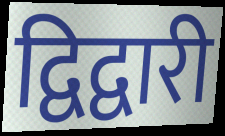
द्विद्वारी